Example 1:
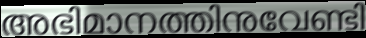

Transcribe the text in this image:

അഭിമാനത്തിനുവേണ്ടി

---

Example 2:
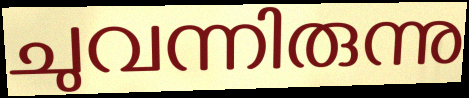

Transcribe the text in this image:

ചുവന്നിരുന്നു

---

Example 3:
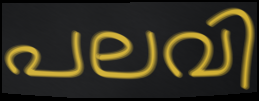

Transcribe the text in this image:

പലവി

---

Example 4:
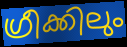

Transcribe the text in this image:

ഗ്രീക്കിലും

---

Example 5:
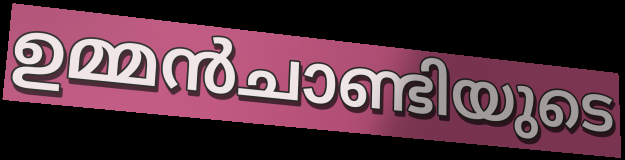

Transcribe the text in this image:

ഉമ്മൻചാണ്ടിയുടെ